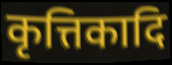
कृत्तिकादि